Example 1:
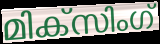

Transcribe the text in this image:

മിക്‌സിംഗ്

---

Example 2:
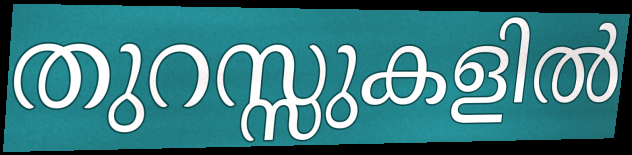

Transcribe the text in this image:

തുറസ്സുകളിൽ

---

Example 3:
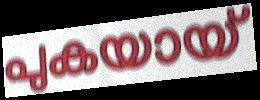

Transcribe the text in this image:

പുകയായ്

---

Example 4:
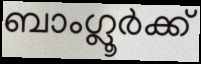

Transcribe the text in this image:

ബാംഗ്ലൂർക്ക്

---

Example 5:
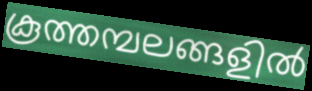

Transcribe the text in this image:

കൂത്തമ്പലങ്ങളിൽ